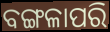
ବଙ୍ଗଳାପରି